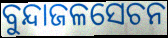
ବୁନ୍ଦାଜଳସେଚନ